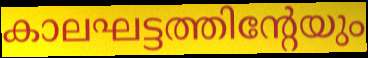
കാലഘട്ടത്തിന്റേയും